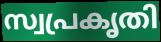
സ്വപ്രകൃതി